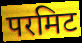
परमिट